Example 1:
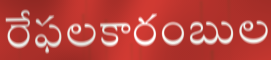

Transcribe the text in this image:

రేఫలకారంబుల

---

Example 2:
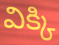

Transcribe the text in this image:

విక్కి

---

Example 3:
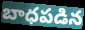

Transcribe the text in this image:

బాధపడిన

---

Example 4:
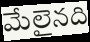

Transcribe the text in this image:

మేలైనది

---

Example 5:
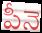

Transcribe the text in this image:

పీనె